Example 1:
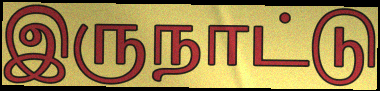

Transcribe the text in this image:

இருநாட்டு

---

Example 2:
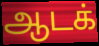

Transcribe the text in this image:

ஆடக்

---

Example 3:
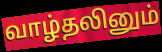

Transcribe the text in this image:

வாழ்தலினும்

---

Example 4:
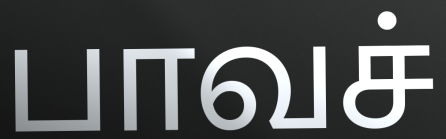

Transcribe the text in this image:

பாவச்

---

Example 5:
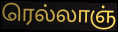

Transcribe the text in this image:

ரெல்லாஞ்